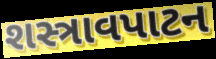
શસ્ત્રાવપાટન